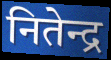
नितेन्द्र